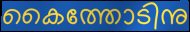
കൈത്തോടിനു